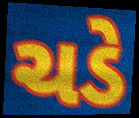
ચડે